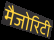
मैजोरिटी